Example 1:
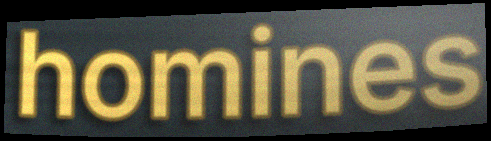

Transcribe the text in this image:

homines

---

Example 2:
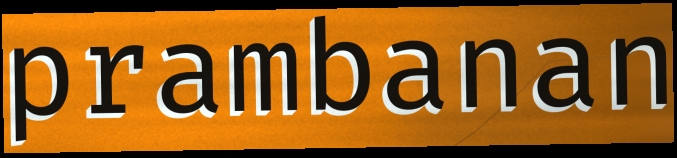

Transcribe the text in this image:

prambanan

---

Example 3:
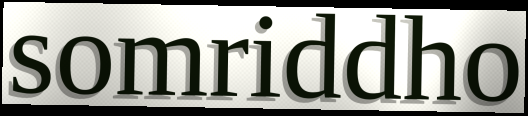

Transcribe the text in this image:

somriddho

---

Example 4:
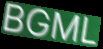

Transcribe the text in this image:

BGML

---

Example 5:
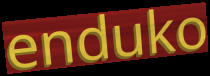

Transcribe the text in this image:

enduko